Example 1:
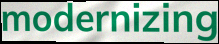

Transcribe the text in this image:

modernizing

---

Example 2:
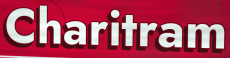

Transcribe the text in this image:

Charitram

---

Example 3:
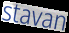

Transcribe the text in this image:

stavan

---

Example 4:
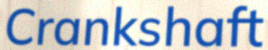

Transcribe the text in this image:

Crankshaft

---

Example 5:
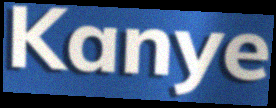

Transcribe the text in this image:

Kanye